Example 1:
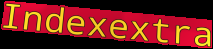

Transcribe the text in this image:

Indexextra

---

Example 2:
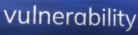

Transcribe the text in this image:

vulnerability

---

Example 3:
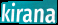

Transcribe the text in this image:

kirana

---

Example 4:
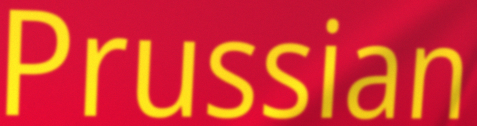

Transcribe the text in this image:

Prussian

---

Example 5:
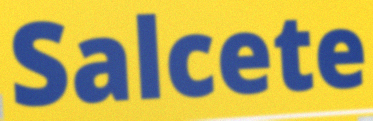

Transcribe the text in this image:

Salcete